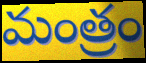
మంత్రం